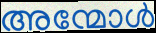
അന്മോൾ